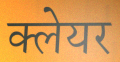
क्लेयर